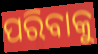
ପରିବାକୁ